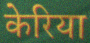
केरिया